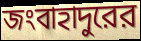
জংবাহাদুরের